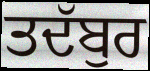
ਤਦੱਬੁਰ